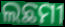
ଲଛମୀ